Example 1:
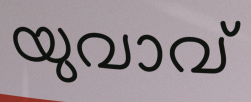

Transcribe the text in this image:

യുവാവ്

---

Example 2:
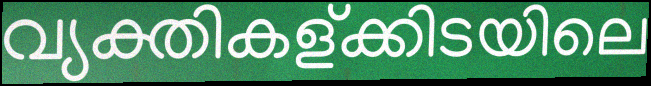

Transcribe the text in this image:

വ്യക്തികള്ക്കിടയിലെ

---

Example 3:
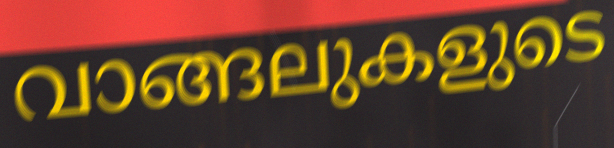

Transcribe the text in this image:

വാങ്ങലുകളുടെ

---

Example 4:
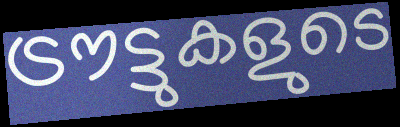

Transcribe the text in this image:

ട്രൗട്ടുകളുടെ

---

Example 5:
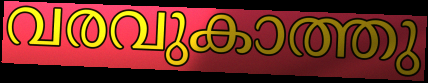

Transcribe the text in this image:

വരവുകാത്തു